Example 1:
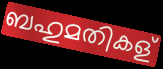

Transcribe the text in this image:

ബഹുമതികള്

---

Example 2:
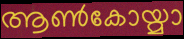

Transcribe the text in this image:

ആൺകോയ്മാ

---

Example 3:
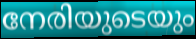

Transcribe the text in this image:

നേരിയുടെയും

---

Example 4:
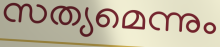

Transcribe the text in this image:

സത്യമെന്നും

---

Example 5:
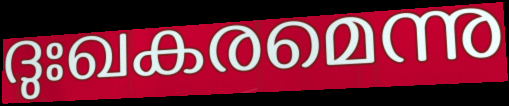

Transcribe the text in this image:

ദുഃഖകരമെന്നു